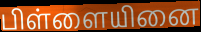
பிள்ளையினை